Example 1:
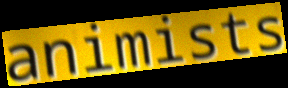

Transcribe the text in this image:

animists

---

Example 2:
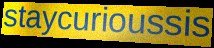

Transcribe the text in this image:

staycurioussis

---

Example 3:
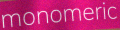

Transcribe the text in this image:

monomeric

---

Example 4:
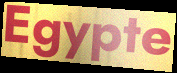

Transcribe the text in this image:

Egypte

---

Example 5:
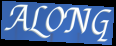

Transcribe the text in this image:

ALONG